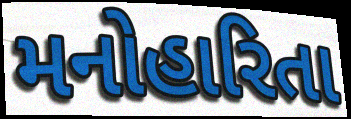
મનોહારિતા